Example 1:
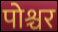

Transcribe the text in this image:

पोश्चर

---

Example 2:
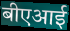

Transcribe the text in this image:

बीएआई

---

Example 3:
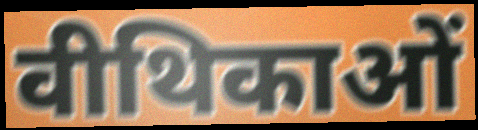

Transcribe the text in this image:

वीथिकाओं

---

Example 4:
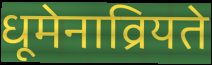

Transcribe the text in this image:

धूमेनाव्रियते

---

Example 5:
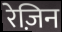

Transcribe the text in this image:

रेज़िन